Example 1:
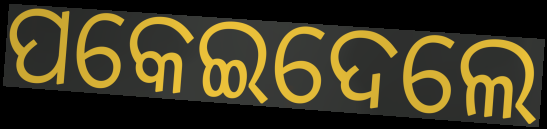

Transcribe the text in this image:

ପକେଇଦେଲେ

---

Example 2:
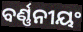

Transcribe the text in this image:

ବର୍ଣ୍ଣନୀୟଂ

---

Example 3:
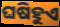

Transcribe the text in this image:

ଘଷିହୁଏ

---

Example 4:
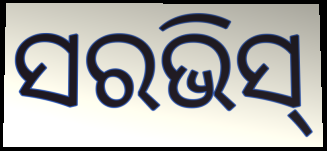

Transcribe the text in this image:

ସରଭିସ୍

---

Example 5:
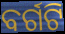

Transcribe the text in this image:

ବର୍ଗଟି